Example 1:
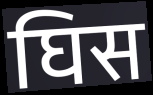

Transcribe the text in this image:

घिस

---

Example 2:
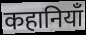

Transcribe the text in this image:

कहानियाँ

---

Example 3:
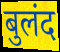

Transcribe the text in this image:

बुलंद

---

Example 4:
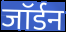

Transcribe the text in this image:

जॉर्डन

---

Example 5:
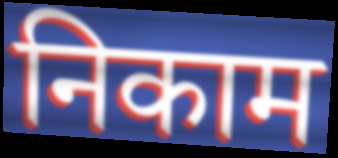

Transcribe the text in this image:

निकाम